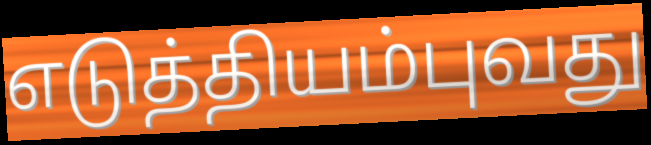
எடுத்தியம்புவது